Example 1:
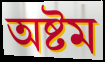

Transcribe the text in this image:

অষ্টম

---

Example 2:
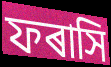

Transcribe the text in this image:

ফৰাসি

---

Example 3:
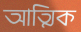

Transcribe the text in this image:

আত্মিক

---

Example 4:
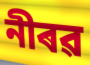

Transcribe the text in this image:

নীৰৱ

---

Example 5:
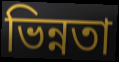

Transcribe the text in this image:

ভিন্নতা